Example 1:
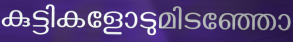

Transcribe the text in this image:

കുട്ടികളോടുമിടഞ്ഞോ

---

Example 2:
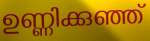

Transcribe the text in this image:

ഉണ്ണിക്കുഞ്ഞ്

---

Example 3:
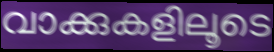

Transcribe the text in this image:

വാക്കുകളിലൂടെ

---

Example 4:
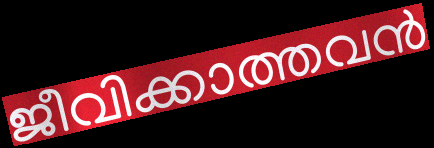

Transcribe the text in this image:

ജീവിക്കാത്തവൻ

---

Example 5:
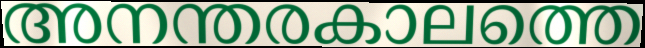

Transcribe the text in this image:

അനന്തരകാലത്തെ